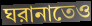
ঘরানাতেও